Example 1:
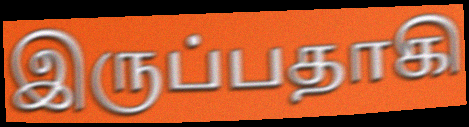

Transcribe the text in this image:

இருப்பதாகி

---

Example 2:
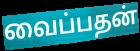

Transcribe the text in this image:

வைப்பதன்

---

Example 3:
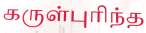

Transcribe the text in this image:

கருள்புரிந்த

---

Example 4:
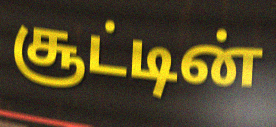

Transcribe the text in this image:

சூட்டின்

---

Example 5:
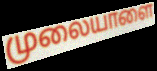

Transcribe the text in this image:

முலையாளை